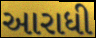
આરાધી